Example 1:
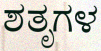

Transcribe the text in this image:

ಶತೃಗಳ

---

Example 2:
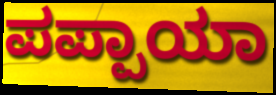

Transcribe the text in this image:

ಪಪ್ಪಾಯಾ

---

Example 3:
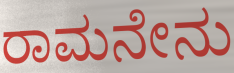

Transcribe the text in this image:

ರಾಮನೇನು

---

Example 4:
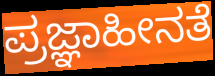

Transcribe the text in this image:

ಪ್ರಜ್ಞಾಹೀನತೆ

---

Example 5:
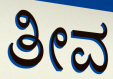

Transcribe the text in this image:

ತೀವ